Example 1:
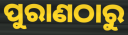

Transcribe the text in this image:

ପୁରାଣଠାରୁ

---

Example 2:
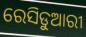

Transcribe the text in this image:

ରେସିଡୁଆରୀ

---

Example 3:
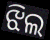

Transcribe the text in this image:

ଝିଲ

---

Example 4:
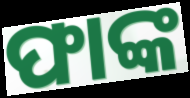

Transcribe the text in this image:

ଫାଙ୍କ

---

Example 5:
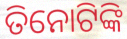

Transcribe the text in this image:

ତିନୋଟିଙ୍କି